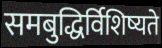
समबुद्धिर्विशिष्यते